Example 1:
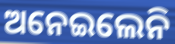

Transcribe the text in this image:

ଅନେଇଲେନି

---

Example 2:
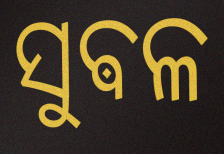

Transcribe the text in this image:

ସୁଵଳ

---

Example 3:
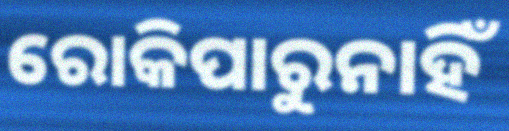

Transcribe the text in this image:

ରୋକିପାରୁନାହିଁ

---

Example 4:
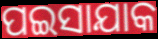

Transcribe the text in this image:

ପଇସାଯାକ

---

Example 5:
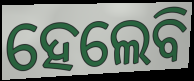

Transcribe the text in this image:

ହେଲେବି